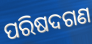
ପରିଷଦଗଣ